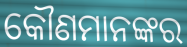
କୌଣମାନଙ୍କର